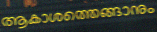
ആകാശത്തെങ്ങാനും